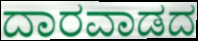
ದಾರವಾಡದ